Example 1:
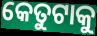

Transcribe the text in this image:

କେତୁଟାକୁ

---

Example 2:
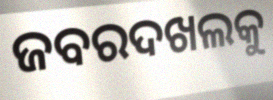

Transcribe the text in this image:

ଜବରଦଖଲକୁ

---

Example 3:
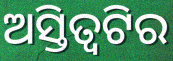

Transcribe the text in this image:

ଅସ୍ତିତ୍ୱଟିର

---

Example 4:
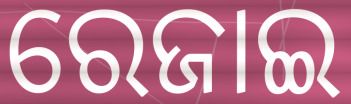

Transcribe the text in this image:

ରେଜାଇ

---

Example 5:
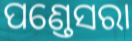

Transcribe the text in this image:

ପଣ୍ଡେସରା